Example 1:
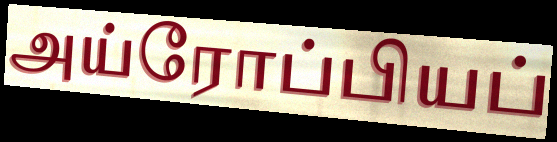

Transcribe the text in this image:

அய்ரோப்பியப்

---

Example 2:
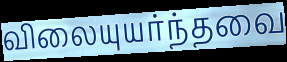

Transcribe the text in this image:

விலையுயர்ந்தவை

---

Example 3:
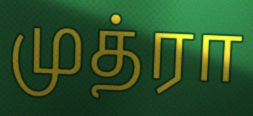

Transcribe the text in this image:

முத்ரா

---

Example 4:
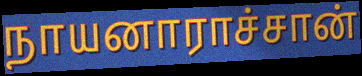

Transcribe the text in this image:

நாயனாராச்சான்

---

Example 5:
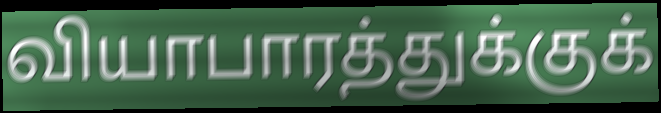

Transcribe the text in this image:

வியாபாரத்துக்குக்